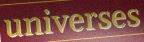
universes